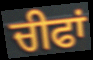
ਚੀਫਾਂ